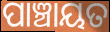
ପାଞ୍ଚାୟତ